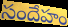
సందేహం